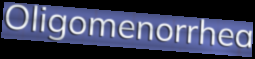
Oligomenorrhea